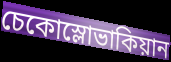
চেকোস্লোভাকিয়ান